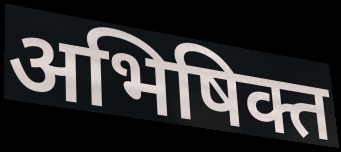
अभिषिक्त